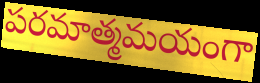
పరమాత్మమయంగా